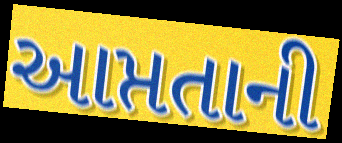
આપ્તતાની